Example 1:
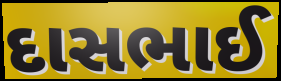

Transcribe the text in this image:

દાસભાઈ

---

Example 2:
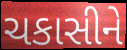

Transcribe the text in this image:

ચકાસીને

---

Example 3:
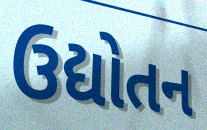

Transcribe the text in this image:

ઉદ્યોતન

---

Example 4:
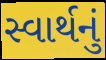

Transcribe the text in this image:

સ્વાર્થનું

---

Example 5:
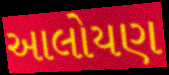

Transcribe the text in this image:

આલોયણ